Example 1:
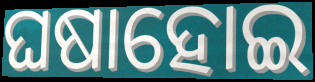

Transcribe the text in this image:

ଘଷାହୋଇ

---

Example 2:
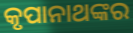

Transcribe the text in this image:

କୃପାନାଥଙ୍କର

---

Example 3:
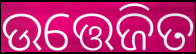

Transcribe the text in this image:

ଉତ୍ତେଜିତ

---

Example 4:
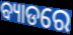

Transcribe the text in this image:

ବ୍ୟାଡରେ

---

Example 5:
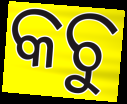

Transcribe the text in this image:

କଚୁ